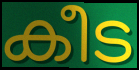
കീട